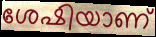
ശേഷിയാണ്